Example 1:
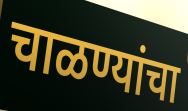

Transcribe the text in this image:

चाळण्यांचा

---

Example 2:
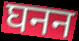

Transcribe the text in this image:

घनन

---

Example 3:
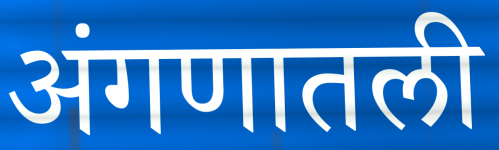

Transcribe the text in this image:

अंगणातली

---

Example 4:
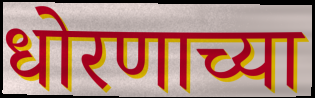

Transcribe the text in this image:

धोरणाच्या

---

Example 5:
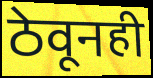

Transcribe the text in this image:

ठेवूनही